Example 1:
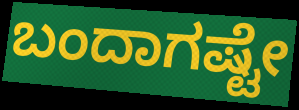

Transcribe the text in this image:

ಬಂದಾಗಷ್ಟೇ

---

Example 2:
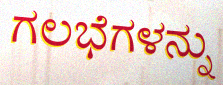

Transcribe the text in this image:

ಗಲಭೆಗಳನ್ನು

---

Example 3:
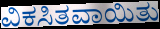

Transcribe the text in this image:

ವಿಕಸಿತವಾಯಿತು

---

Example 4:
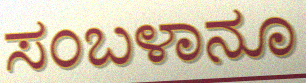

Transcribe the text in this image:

ಸಂಬಳಾನೂ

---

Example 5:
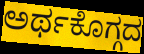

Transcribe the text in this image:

ಅರ್ಥಕೊಗ್ಗದ